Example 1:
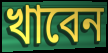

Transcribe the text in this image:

খাবেন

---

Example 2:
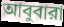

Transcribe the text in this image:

আবুবারা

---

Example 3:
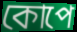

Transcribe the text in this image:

কোপে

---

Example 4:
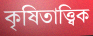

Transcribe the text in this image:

কৃষিতাত্ত্বিক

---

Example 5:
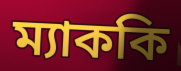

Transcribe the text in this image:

ম্যাককি